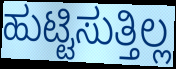
ಹುಟ್ಟಿಸುತ್ತಿಲ್ಲ